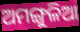
ଅମଙ୍ଗୁଳିଆ